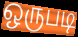
ஒருபடி